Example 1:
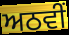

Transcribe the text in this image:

ਅਠਵੀਂ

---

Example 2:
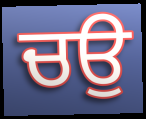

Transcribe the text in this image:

ਚਉ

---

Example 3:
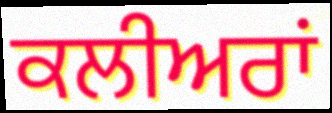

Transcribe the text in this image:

ਕਲੀਅਰਾਂ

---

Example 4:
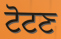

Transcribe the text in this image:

ਟੋਟਣ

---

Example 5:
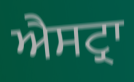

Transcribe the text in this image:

ਐਸਟ੍ਰਾ